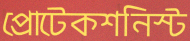
প্রোটেকশনিস্ট